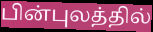
பின்புலத்தில்